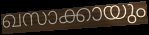
ഖസാക്കായും